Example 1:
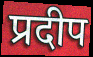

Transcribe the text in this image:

प्रदीप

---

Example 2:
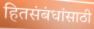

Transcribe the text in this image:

हितसंबंधांसाठी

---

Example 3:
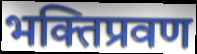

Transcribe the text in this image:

भक्तिप्रवण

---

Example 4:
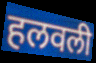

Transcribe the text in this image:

हलवली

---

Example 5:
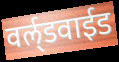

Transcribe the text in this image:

वर्ल्डवाईड